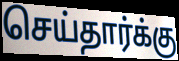
செய்தார்க்கு